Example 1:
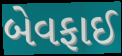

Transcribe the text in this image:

બેવફાઈ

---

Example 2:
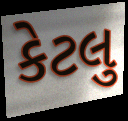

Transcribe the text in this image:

કેટલુ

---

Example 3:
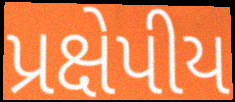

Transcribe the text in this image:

પ્રક્ષેપીય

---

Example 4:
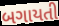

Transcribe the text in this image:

બગાયતી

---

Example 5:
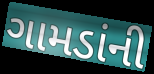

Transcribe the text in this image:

ગામડાંની